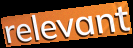
relevant